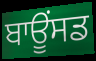
ਬਾਊਂਸਡ